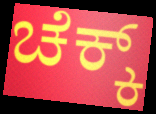
ಚೆಕ್ಕ್